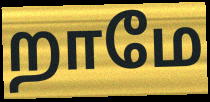
றாமே